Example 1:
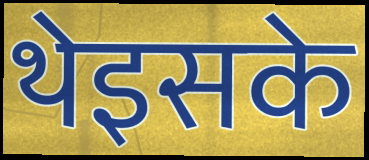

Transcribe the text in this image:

थेइसके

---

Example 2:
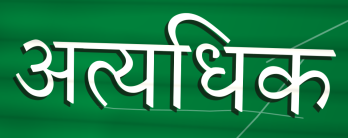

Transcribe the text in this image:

अत्यधिक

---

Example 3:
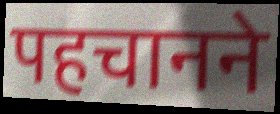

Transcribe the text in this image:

पहचानने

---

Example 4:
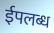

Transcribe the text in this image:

ईपलब्ध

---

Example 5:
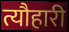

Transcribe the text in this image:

त्यौहारी